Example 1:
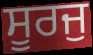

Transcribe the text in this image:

ਸੂਰਜੁ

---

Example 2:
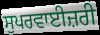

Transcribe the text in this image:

ਸੁਪਰਵਾਈਜ਼ਰੀ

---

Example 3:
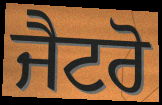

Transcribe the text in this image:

ਜੈਟਰੋ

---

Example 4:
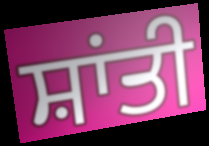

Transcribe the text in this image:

ਸ਼ਾਂਤੀ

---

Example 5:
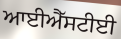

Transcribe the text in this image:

ਆਈਐੱਸਟੀਈ